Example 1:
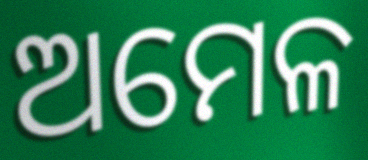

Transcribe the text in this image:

ଅମେଳ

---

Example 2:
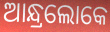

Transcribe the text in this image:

ଆନ୍ଧ୍ରଲୋକେ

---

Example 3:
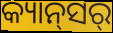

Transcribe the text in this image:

କ୍ୟାନ୍‍ସର୍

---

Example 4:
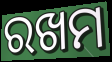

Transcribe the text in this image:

ରଖମ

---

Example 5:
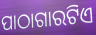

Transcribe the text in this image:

ପାଠାଗାରଟିଏ